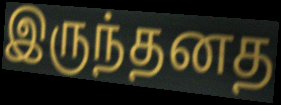
இருந்தனத